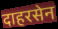
दाहरसेन